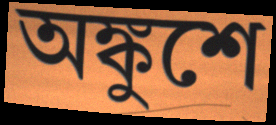
অঙ্কুশে